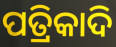
ପତ୍ରିକାଦି